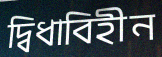
দ্বিধাবিহীন